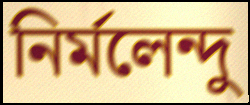
নির্মলেন্দু